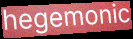
hegemonic